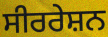
ਸੀਰਰੇਸ਼ਨ